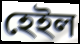
হেইল